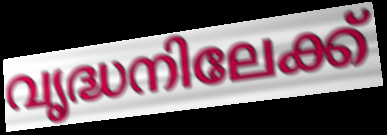
വൃദ്ധനിലേക്ക്